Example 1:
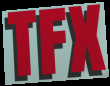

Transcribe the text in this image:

TFX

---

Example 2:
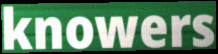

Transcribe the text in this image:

knowers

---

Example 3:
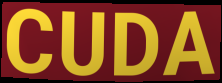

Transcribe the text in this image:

CUDA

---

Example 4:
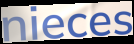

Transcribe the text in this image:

nieces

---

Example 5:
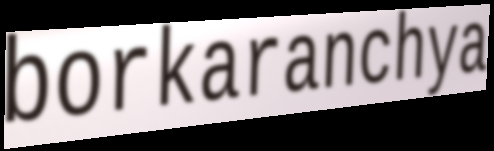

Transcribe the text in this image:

borkaranchya